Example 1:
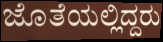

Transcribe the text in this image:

ಜೊತೆಯಲ್ಲಿದ್ದರು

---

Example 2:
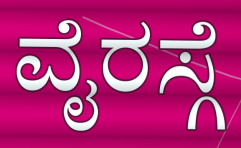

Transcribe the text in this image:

ವೈರಸ್ಗೆ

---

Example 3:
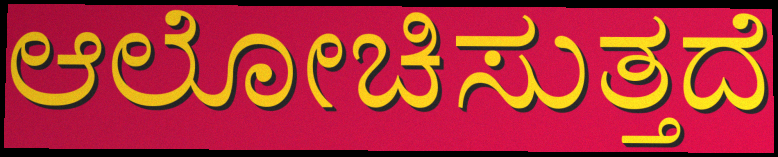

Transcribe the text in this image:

ಆಲೋಚಿಸುತ್ತದೆ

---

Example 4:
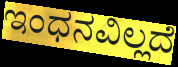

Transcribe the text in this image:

ಇಂಧನವಿಲ್ಲದೆ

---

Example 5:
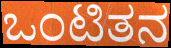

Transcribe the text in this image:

ಒಂಟಿತನ